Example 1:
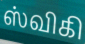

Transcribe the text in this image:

ஸ்விகி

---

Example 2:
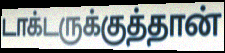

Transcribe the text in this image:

டாக்டருக்குத்தான்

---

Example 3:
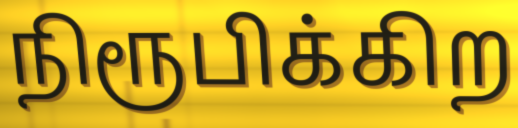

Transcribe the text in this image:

நிரூபிக்கிற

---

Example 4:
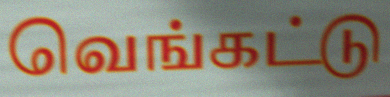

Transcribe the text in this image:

வெங்கட்டு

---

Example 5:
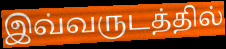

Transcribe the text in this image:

இவ்வருடத்தில்